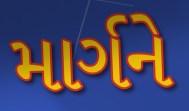
માર્ગને